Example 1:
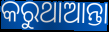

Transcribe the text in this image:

କରୁଥାଆନ୍ତା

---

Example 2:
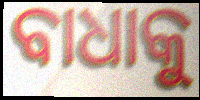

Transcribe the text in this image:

ବାଧାକୁ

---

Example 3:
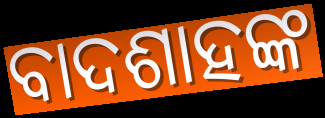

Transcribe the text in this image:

ବାଦଶାହଙ୍କ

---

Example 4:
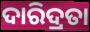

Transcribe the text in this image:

ଦାରିଦ୍ରତା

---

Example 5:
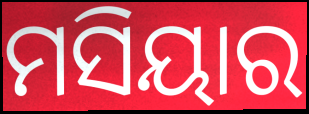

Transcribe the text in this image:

ମସିୟାର